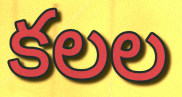
కలల